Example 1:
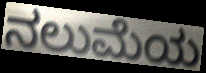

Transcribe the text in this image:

ನಲುಮೆಯ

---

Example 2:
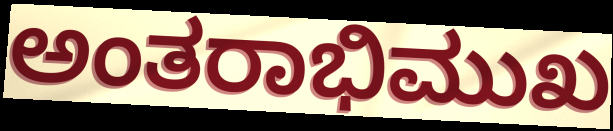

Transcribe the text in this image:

ಅಂತರಾಭಿಮುಖ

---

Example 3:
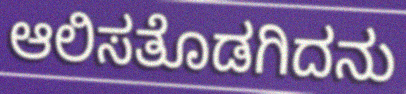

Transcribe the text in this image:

ಆಲಿಸತೊಡಗಿದನು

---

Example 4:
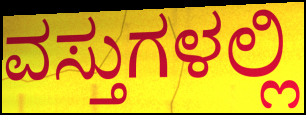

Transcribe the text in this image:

ವಸ್ತುಗಳಲ್ಲಿ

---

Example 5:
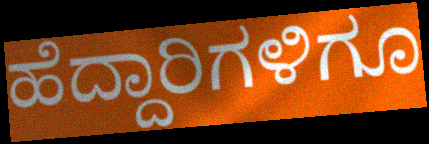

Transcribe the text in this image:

ಹೆದ್ದಾರಿಗಳಿಗೂ